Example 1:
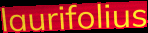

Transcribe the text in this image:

laurifolius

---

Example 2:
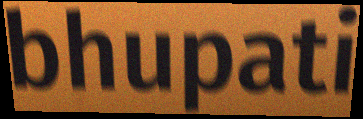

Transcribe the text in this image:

bhupati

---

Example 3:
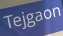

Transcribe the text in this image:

Tejgaon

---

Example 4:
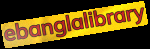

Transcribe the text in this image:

ebanglalibrary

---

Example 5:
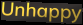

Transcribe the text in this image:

Unhappy